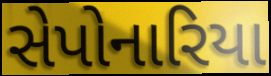
સેપોનારિયા